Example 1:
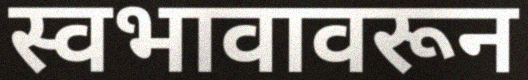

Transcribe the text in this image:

स्वभावावरून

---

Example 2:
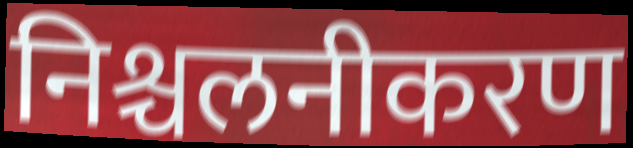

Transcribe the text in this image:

निश्चलनीकरण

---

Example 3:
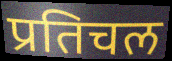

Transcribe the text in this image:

प्रतिचल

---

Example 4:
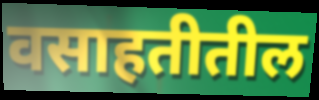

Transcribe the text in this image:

वसाहतीतील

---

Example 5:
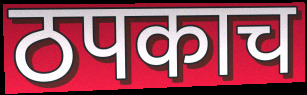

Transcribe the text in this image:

ठपकाच